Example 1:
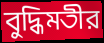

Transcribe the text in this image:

বুদ্ধিমতীর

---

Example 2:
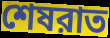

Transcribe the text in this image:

শেষরাত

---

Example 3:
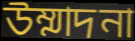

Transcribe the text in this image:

উম্মাদনা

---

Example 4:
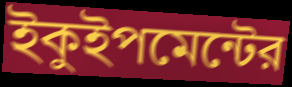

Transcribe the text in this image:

ইকুইপমেন্টের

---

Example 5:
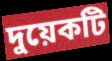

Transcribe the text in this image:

দুয়েকটি